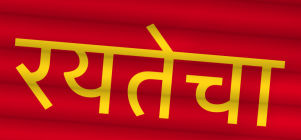
रयतेचा